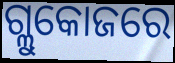
ଗ୍ଲୁକୋଜରେ